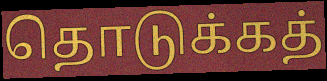
தொடுக்கத்